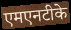
एमएनटीके